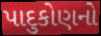
પાદુકોણનો